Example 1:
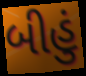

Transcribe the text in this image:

બીહું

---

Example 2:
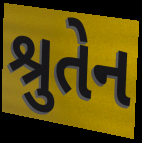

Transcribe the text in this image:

શ્રુતેન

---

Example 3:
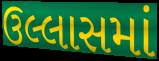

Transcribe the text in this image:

ઉલ્લાસમાં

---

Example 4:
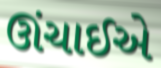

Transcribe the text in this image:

ઊંચાઈએ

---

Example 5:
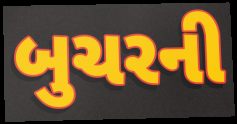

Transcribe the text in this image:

બુચરની